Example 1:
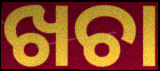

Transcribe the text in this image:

ଖଚା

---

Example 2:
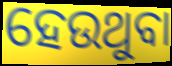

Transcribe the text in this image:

ହେଉଥୁବା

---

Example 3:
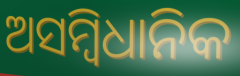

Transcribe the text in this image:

ଅସମ୍ବିଧାନିକ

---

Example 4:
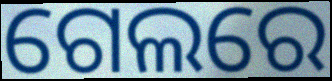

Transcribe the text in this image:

ଗେଲରେ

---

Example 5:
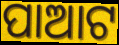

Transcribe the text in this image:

ପାଆଟ